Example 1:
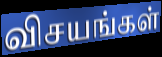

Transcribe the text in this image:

விசயங்கள்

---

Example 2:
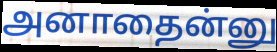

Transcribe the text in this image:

அனாதைன்னு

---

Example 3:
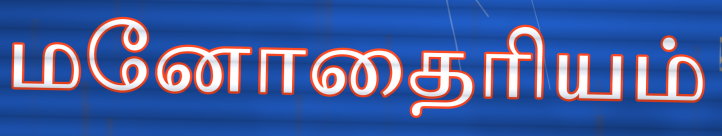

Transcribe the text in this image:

மனோதைரியம்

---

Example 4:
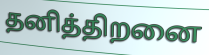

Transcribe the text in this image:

தனித்திறனை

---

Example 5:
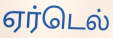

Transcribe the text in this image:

ஏர்டெல்